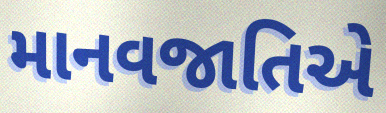
માનવજાતિએ